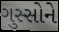
ગુસ્સોને